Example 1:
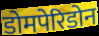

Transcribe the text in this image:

डोमपेरिडोन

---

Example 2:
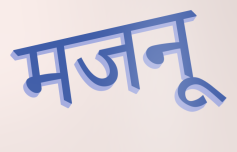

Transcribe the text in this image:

मजनू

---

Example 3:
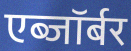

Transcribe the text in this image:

एब्जॉर्बर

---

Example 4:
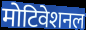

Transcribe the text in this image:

मोटिवेशनल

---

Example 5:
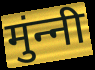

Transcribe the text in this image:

मुंन्नी